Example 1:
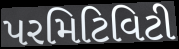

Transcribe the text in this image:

પરમિટિવિટી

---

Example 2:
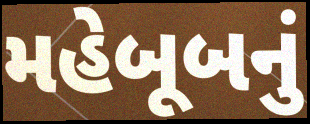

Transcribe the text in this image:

મહેબૂબનું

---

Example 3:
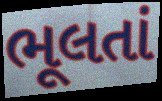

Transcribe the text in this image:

ભૂલતાં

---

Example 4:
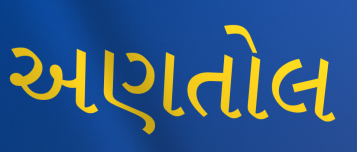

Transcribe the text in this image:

અણતોલ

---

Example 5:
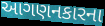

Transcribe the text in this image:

આગણનકારના